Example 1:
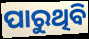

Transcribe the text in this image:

ପାରୁଥିବି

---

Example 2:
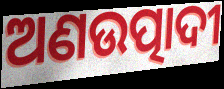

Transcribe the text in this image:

ଅଣଉତ୍ପାଦୀ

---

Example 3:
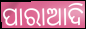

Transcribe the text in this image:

ପାରାଆଦି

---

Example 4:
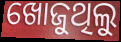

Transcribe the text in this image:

ଖୋଜୁଥିଲୁ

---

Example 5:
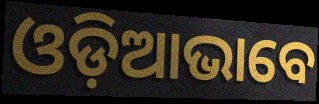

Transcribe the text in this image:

ଓଡ଼ିଆଭାବେ